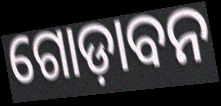
ଗୋଡ଼ାବନ